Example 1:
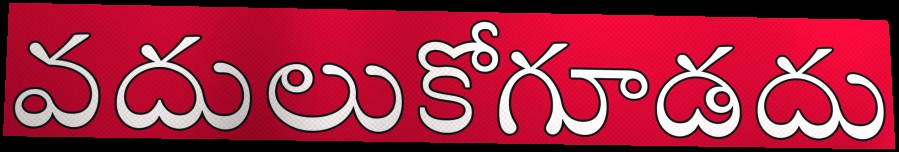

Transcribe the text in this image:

వదులుకోగూడదు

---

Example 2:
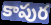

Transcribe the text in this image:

కాపుర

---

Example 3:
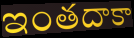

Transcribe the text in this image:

ఇంతదాకా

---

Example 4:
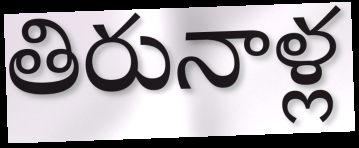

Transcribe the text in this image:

తిరునాళ్ల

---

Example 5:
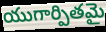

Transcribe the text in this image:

యుగార్పితమై